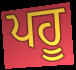
ਪਹੂ